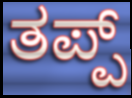
ತಪ್ಪ್